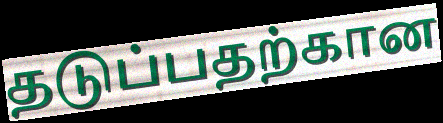
தடுப்பதற்கான